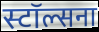
स्टॉल्सना